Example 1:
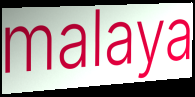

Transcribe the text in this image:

malaya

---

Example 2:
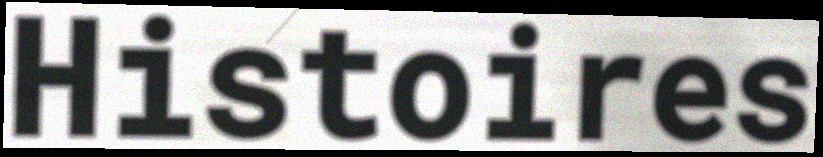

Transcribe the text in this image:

Histoires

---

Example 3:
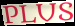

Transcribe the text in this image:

PLUS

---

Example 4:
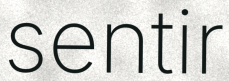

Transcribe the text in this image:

sentir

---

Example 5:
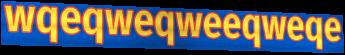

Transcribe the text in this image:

wqeqweqweeqweqe